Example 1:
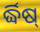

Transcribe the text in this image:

ର୍ଦ୍ଧିଷ୍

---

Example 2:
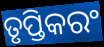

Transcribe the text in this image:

ତୃପ୍ତିକରଂ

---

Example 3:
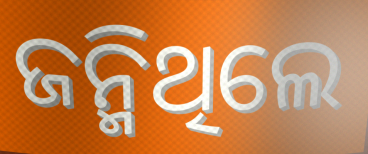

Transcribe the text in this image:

ଜନ୍ମିଥିଲେ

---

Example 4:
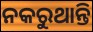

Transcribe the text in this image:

ନକରୁଥାନ୍ତି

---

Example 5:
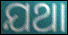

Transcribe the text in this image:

ଯଥା